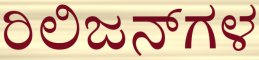
ರಿಲಿಜನ್‌ಗಳ